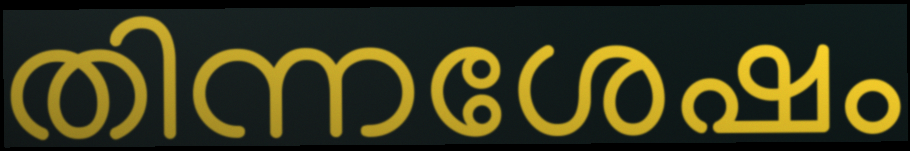
തിന്നശേഷം